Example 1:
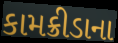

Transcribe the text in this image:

કામક્રીડાના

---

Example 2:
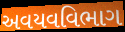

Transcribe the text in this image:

અવયવવિભાગ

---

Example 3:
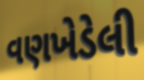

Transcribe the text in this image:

વણખેડેલી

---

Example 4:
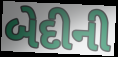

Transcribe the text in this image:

બેદીની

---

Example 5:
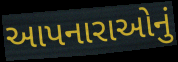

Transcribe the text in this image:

આપનારાઓનું